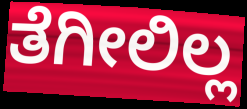
ತೆಗೀಲಿಲ್ಲ